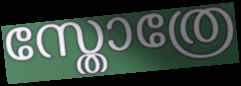
സ്തോത്രേ